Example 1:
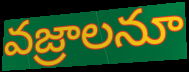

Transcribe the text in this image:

వజ్రాలనూ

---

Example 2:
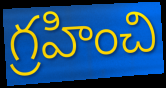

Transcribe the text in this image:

గ్రహించి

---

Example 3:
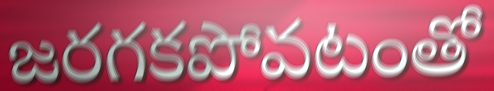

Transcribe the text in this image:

జరగకపోవటంతో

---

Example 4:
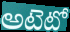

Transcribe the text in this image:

అటెటో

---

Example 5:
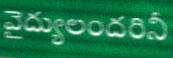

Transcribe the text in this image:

వైద్యులందరినీ